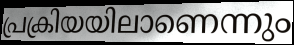
പ്രക്രിയയിലാണെന്നും